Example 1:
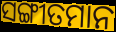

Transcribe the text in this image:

ସଙ୍ଗୀତମାନ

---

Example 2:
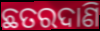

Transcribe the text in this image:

ଛତରଦାଣି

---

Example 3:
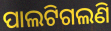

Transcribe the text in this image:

ପାଲଟିଗଲଣି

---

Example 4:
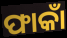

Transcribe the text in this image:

ଫାକାଁ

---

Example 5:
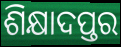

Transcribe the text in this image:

ଶିକ୍ଷାଦପ୍ତର